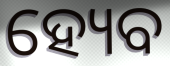
ହ୍ୟେବ